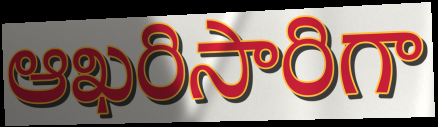
ఆఖరిసారిగా